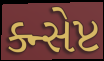
ક્ન્સેપ્ટ